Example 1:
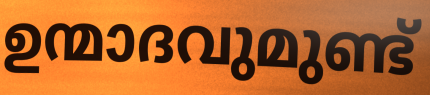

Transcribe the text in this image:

ഉന്മാദവുമുണ്ട്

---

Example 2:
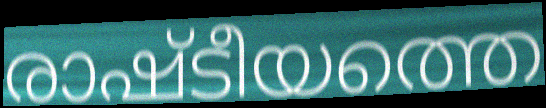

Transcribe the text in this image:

രാഷ്ടീയത്തെ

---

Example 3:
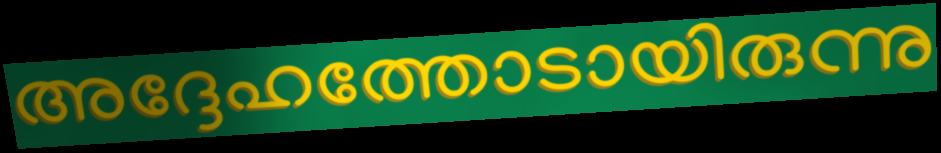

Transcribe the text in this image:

അദ്ദേഹത്തോടായിരുന്നു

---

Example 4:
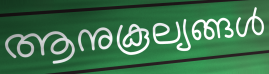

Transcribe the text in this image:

ആനുകൂല്യങ്ങൾ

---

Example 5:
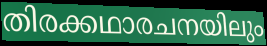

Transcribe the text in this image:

തിരക്കഥാരചനയിലും